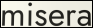
misera